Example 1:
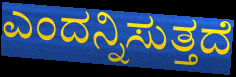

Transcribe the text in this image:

ಎಂದನ್ನಿಸುತ್ತದೆ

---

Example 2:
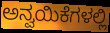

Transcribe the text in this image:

ಅನ್ವಯಿಕೆಗಳಲ್ಲಿ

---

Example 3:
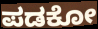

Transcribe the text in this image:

ಪಡಕೋ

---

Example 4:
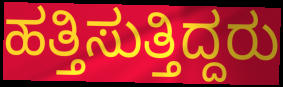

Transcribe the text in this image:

ಹತ್ತಿಸುತ್ತಿದ್ದರು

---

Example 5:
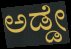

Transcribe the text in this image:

ಅಡ್ಡೇ